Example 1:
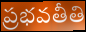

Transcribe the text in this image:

ప్రభవతీతి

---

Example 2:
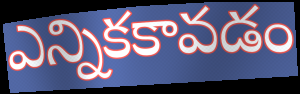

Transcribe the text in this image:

ఎన్నికకావడం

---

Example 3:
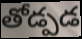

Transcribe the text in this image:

తోడ్పడ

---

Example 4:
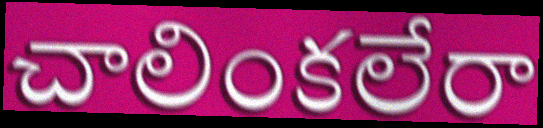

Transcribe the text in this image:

చాలింకలేరా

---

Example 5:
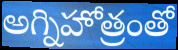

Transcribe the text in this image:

అగ్నిహోత్రంతో